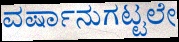
ವರ್ಷಾನುಗಟ್ಟಲೇ